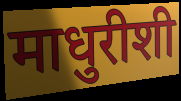
माधुरीशी